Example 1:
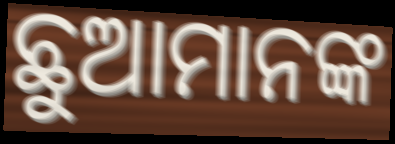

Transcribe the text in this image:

ଛୁଆମାନଙ୍କ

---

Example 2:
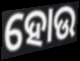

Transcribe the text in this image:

ହୋଉ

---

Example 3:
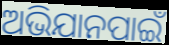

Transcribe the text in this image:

ଅଭିଯାନପାଇଁ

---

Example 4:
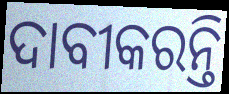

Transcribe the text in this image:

ଦାବୀକରନ୍ତି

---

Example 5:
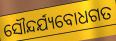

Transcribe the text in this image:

ସୌନ୍ଦର୍ଯ୍ୟବୋଧଗତ